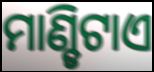
ମାଣ୍ଡିଟାଏ